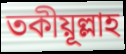
তকীয়ূল্লাহ